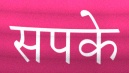
सपके